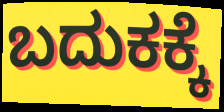
ಬದುಕಕ್ಕೆ